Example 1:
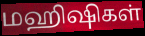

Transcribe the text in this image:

மஹிஷிகள்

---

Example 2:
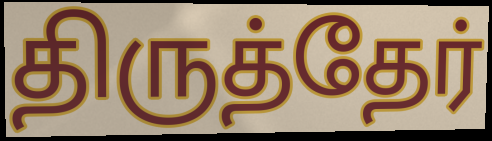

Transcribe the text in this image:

திருத்தேர்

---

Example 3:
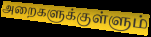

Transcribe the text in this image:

அறைகளுக்குள்ளும்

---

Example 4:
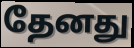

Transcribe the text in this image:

தேனது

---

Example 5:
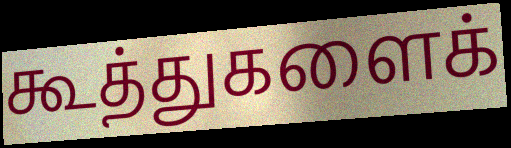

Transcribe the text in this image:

கூத்துகளைக்